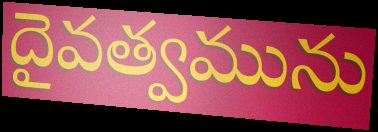
దైవత్వమును